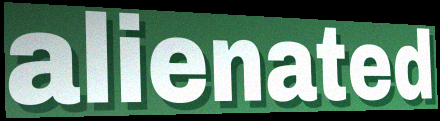
alienated